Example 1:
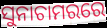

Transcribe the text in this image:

ସୁନାଚାମରରେ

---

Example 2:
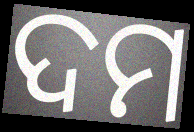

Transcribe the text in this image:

ଦମ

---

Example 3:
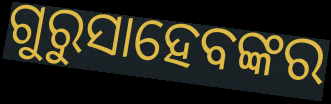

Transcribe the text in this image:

ଗୁରୁସାହେବଙ୍କର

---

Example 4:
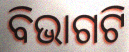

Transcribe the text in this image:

ବିଭାଗଟି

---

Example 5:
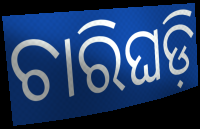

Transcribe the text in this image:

ଚାରିଘଡ଼ି